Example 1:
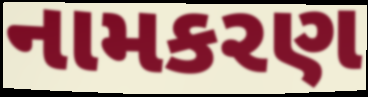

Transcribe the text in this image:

નામકરણ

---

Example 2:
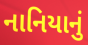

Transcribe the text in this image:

નાનિયાનું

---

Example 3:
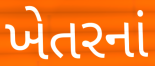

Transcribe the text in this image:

ખેતરનાં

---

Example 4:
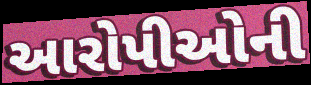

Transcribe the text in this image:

આરોપીઓની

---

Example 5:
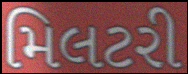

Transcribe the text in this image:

મિલટરી